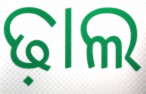
ଢ଼ାଲ